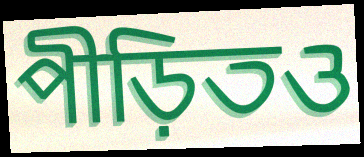
পীড়িতও